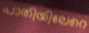
പാതിയിലേറെ